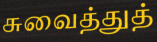
சுவைத்துத்